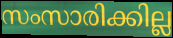
സംസാരിക്കില്ല